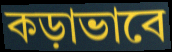
কড়াভাবে